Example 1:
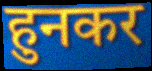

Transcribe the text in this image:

हुनकर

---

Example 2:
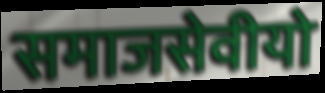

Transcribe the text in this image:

समाजसेवीयो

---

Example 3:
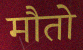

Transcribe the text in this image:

मौतो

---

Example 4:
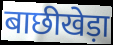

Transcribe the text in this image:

बाछीखेड़ा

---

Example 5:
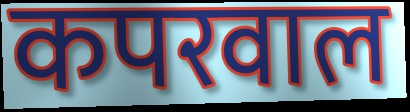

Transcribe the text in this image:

कपरवाल